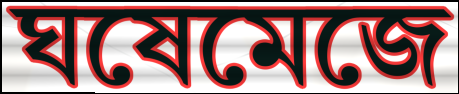
ঘষেমেজে